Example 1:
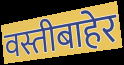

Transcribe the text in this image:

वस्तीबाहेर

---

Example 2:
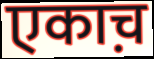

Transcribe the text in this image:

एकाच़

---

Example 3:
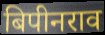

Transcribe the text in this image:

बिपीनराव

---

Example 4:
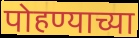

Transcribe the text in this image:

पोहण्याच्या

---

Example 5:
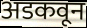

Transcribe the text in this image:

अडकवून